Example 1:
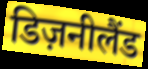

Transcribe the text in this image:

डिज़नीलैंड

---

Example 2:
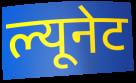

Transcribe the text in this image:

ल्यूनेट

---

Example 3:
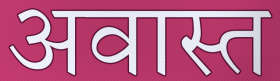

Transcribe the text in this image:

अवास्त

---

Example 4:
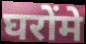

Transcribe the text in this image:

घरोंमे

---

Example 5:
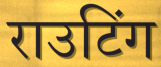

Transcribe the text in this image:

राउटिंग